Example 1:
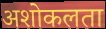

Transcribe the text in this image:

अशोकलता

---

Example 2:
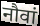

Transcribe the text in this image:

नौवां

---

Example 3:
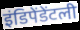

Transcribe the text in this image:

इंडिपेंडेंटली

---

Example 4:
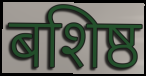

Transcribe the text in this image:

बशिष्ठ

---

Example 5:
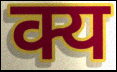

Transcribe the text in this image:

क्य